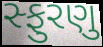
સ્ફુરણુ